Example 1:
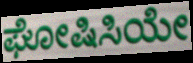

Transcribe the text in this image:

ಘೋಷಿಸಿಯೇ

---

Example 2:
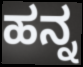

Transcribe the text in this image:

ಹನ್ನ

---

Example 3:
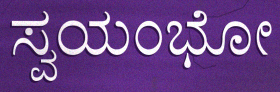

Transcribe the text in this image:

ಸ್ವಯಂಭೋ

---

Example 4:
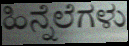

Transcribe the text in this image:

ಹಿನ್ನೆಲೆಗಳು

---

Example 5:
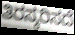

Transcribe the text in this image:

ತಿರಸ್ಕರಿಸದೆ